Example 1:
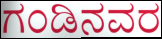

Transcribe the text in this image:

ಗಂಡಿನವರ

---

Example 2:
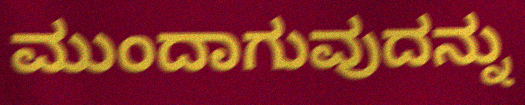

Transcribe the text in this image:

ಮುಂದಾಗುವುದನ್ನು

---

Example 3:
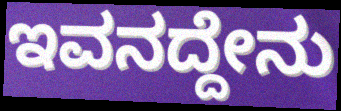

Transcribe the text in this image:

ಇವನದ್ದೇನು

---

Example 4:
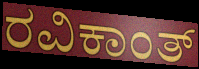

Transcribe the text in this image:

ರವಿಕಾಂತ್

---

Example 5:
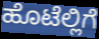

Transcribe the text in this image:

ಹೊಟೆಲ್ಲಿಗೆ